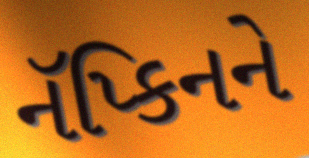
નૅપ્કિનને